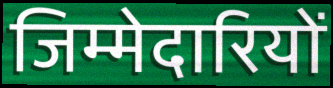
जिम्मेदारियों